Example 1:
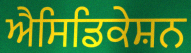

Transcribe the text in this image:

ਐਸਿਡਿਕੇਸ਼ਨ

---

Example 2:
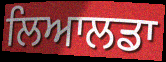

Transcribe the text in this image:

ਲਿਆਲਡਾ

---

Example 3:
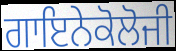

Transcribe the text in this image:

ਗਾਇਨੇਕੋਲੋਜੀ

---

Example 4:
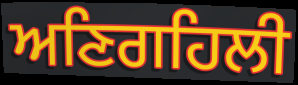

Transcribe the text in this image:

ਅਣਿਗਹਿਲੀ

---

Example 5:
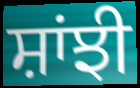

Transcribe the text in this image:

ਸ਼ਾਂਝੀ